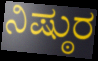
ನಿಷ್ಠುರ